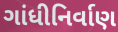
ગાંધીનિર્વાણ